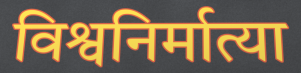
विश्वनिर्मात्या